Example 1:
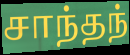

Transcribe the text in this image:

சாந்தந்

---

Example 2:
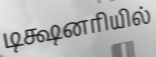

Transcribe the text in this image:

டிக்ஷனரியில்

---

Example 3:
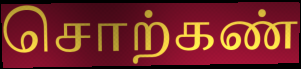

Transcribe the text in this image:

சொற்கண்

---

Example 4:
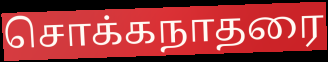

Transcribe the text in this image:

சொக்கநாதரை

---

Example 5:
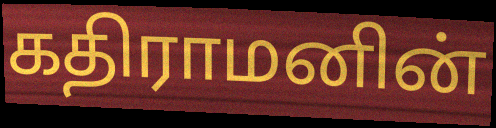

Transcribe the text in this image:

கதிராமனின்